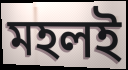
মহলই